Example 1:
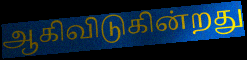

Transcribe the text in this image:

ஆகிவிடுகின்றது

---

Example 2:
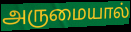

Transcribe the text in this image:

அருமையால்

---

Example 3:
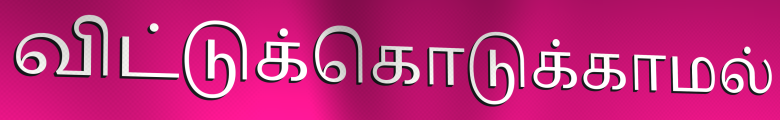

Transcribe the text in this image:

விட்டுக்கொடுக்காமல்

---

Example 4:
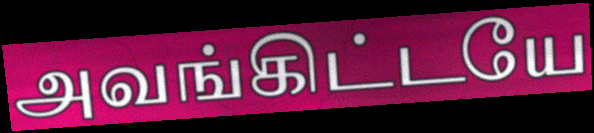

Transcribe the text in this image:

அவங்கிட்டயே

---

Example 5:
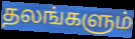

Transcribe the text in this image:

தலங்களும்